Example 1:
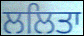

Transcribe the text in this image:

ਲਲਿਤਾ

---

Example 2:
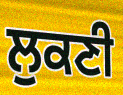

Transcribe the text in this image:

ਲੁਕਣੀ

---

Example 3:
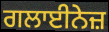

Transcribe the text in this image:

ਗਲਾਈਨੇਜ਼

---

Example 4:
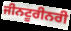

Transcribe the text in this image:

ਜੀਨਟੂਰੀਨਰੀ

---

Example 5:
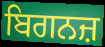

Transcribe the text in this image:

ਬਿਗਨਜ਼